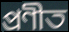
প্রণীত